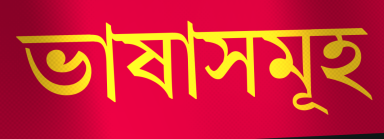
ভাষাসমূহ